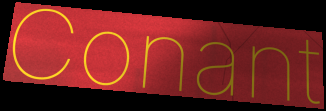
Conant